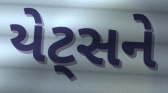
યેટ્સને